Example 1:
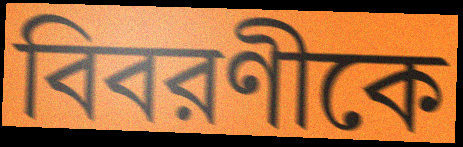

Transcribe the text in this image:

বিবরণীকে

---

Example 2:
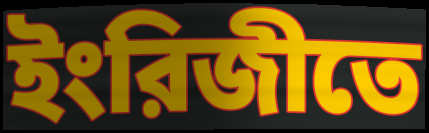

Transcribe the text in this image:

ইংরিজীতে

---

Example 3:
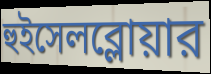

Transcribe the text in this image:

হুইসেলব্লোয়ার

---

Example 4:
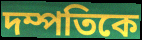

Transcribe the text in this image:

দম্পতিকে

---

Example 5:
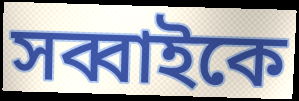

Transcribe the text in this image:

সব্বাইকে